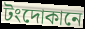
টংদোকানে